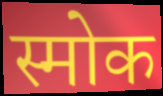
स्मोक